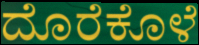
ದೊರೆಕೊಳೆ